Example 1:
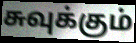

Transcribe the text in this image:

சுவுக்கும்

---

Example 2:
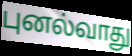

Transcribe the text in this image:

புனல்வாது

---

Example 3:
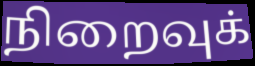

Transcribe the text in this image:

நிறைவுக்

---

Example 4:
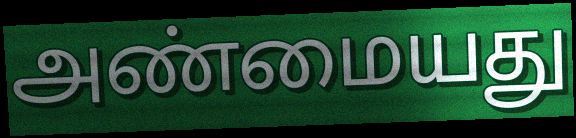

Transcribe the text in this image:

அண்மையது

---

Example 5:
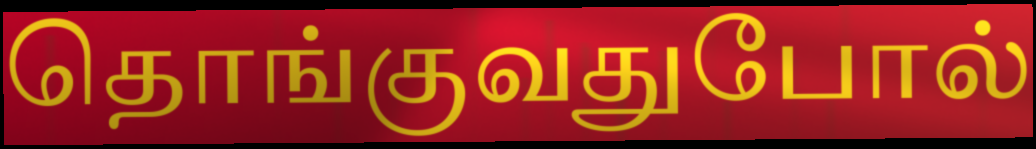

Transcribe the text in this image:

தொங்குவதுபோல்